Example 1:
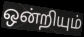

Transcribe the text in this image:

ஒன்றியும்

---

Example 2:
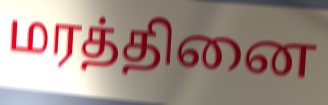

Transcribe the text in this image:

மரத்தினை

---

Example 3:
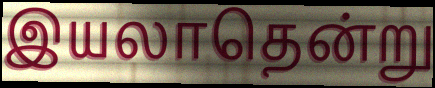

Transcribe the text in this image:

இயலாதென்று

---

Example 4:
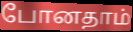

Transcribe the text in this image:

போனதாம்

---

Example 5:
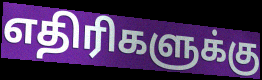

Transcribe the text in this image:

எதிரிகளுக்கு